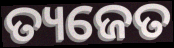
ତ୍ୟଜେତ